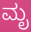
ಮೃ